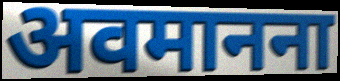
अवमानना